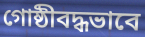
গোষ্ঠীবদ্ধভাবে